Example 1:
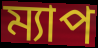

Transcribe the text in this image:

ম্যাপ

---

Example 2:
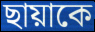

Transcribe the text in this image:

ছায়াকে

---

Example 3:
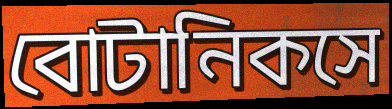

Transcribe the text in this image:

বোটানিকসে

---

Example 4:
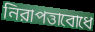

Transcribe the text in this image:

নিরাপত্তাবোধে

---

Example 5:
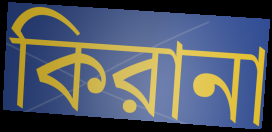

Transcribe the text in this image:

কিরানা